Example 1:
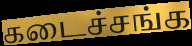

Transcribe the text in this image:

கடைச்சங்க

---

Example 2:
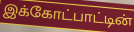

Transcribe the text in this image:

இக்கோட்பாட்டின்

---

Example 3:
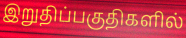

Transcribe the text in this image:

இறுதிப்பகுதிகளில்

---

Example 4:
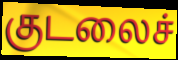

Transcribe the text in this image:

குடலைச்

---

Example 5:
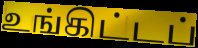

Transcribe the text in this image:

உங்கிட்டப்